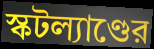
স্কটল্যাণ্ডের